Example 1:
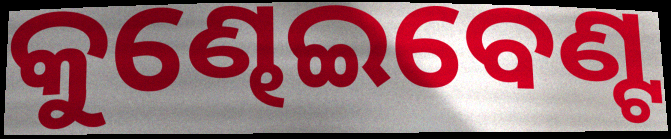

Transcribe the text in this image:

କୁଣ୍ଢେଇବେଣ୍ଟ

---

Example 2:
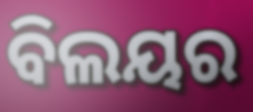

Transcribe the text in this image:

ବିଲୟର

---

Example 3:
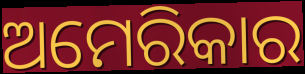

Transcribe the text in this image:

ଅମେରିକାର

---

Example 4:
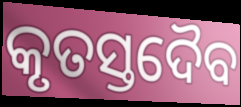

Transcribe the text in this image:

କୃତସ୍ତଦୈବ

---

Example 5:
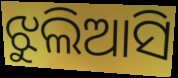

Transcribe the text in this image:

ଝୁଲିଆସି